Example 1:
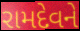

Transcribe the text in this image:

રામદેવને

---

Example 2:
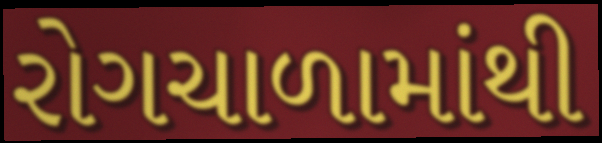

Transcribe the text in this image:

રોગચાળામાંથી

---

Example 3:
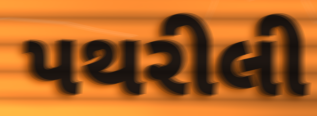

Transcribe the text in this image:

પથરીલી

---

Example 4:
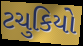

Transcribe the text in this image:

ટચુકિયો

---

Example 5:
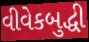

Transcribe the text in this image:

વીવેકબુદ્ધી